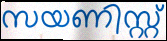
സയണിസ്റ്റ്